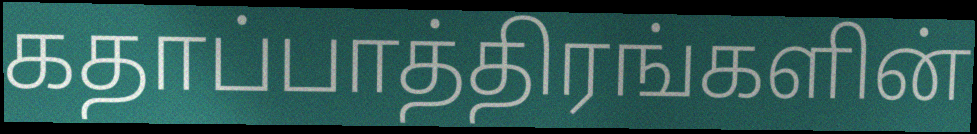
கதாப்பாத்திரங்களின்